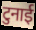
टुनाई